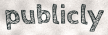
publicly